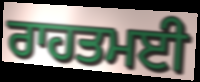
ਰਾਹਤਮਈ